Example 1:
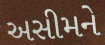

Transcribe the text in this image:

અસીમને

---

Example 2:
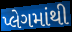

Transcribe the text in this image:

પ્લેગમાંથી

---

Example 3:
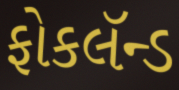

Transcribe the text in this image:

ફોકલૅન્ડ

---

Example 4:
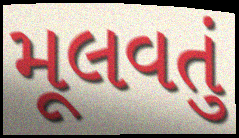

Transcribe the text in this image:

મૂલવતું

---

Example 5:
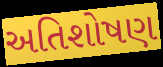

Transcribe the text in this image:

અતિશોષણ